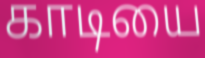
காடியை